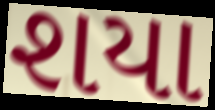
શયા